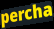
percha